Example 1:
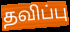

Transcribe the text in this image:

தவிப்பு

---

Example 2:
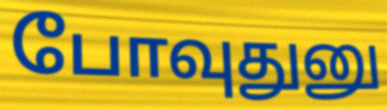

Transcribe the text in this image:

போவுதுனு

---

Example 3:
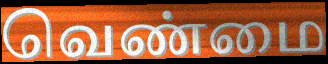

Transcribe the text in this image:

வெண்மை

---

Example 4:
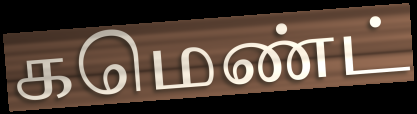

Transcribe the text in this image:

கமெண்ட்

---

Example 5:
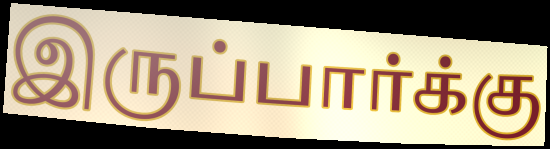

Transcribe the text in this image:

இருப்பார்க்கு